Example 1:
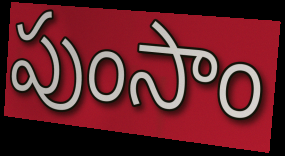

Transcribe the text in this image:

పుంసాం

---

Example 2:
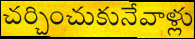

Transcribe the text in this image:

చర్చించుకునేవాళ్లు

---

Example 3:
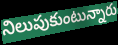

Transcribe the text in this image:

నిలుపుకుంటున్నారు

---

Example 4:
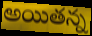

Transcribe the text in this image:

అయితన్న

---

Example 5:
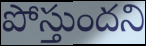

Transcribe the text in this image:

పోస్తుందని